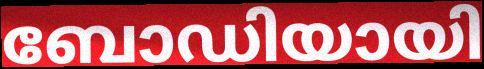
ബോഡിയായി